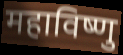
महाविष्णु